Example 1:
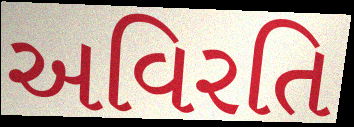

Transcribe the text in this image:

અવિરતિ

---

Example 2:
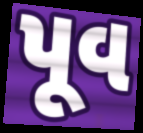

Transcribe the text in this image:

પૂવ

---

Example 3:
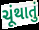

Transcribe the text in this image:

ચૂંથાતું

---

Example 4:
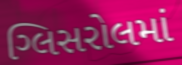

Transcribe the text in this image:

ગ્લિસરોલમાં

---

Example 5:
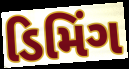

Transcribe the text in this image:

ડિમિંગ